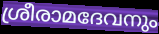
ശ്രീരാമദേവനും